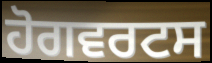
ਹੋਗਵਰਟਸ